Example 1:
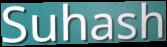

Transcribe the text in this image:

Suhash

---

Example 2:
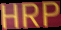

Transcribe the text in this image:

HRP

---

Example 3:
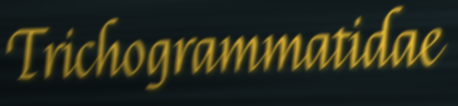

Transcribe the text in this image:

Trichogrammatidae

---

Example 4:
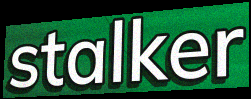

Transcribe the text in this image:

stalker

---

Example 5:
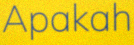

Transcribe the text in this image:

Apakah